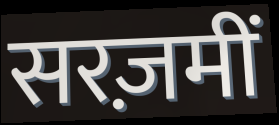
सरज़मीं